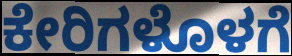
ಕೇರಿಗಳೊಳಗೆ